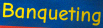
Banqueting